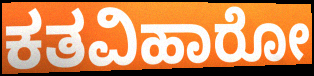
ಕತವಿಹಾರೋ